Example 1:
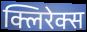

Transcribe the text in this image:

क्लिरेक्स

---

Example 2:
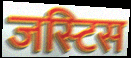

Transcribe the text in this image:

जस्‍टिस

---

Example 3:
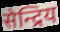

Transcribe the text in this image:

सेन्द्रिय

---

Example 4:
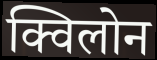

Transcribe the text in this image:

क्विलोन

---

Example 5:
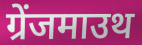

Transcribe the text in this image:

ग्रेंजमाउथ